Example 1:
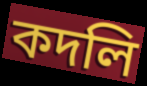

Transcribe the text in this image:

কদলি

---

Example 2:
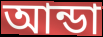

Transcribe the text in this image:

আন্ডা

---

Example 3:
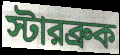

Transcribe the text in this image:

স্টারব্রুক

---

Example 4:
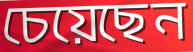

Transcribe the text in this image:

চেয়েছেন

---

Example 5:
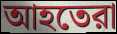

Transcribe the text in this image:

আহতেরা